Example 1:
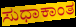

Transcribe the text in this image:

ಸುಧಾಕಾಂತ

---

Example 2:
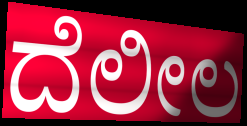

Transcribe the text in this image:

ದೆಲೀಲ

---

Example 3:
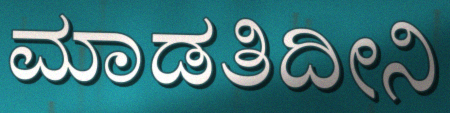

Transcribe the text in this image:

ಮಾಡತಿದೀನಿ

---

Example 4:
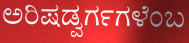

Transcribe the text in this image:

ಅರಿಷಡ್ವರ್ಗಗಳೆಂಬ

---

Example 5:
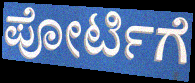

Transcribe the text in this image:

ಪೋರ್ಟಿಗೆ